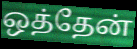
ஒத்தேன்